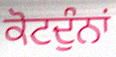
ਕੋਟਦੁੰਨਾਂ